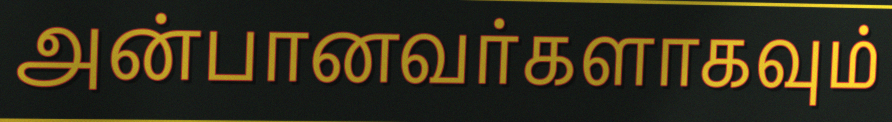
அன்பானவர்களாகவும்